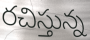
రచిస్తున్న